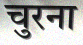
चुरना